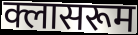
क्‍लासरूम